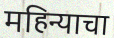
महिन्याचा